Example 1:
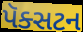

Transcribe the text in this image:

પૅક્સટન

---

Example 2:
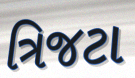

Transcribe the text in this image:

ત્રિજટા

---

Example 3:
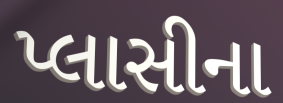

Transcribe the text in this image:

પ્લાસીના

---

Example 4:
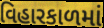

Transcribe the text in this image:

વિહારકાળમાં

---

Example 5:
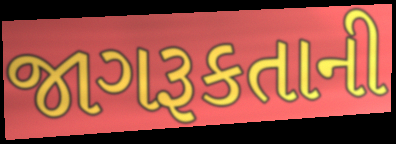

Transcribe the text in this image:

જાગરૂકતાની